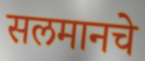
सलमानचे